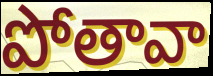
పోతావా